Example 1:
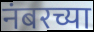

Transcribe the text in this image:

नंबरच्या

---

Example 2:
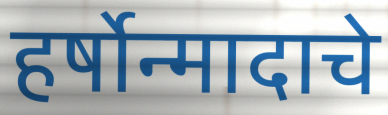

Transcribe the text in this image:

हर्षोन्मादाचे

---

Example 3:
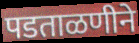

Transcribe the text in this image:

पडताळणीने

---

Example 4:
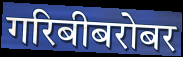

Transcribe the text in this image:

गरिबीबरोबर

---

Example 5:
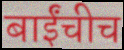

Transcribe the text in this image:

बाईंचीच